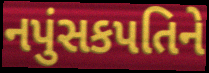
નપુંસકપતિને